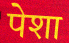
पेशा